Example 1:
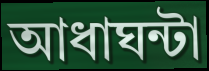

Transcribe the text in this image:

আধাঘন্টা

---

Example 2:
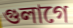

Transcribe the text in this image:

গুলাগে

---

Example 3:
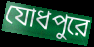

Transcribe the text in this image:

যোধপুরে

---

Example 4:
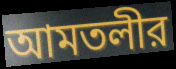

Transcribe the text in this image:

আমতলীর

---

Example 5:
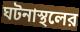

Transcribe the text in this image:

ঘটনাস্থলের